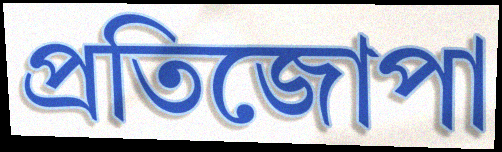
প্ৰতিজোপা